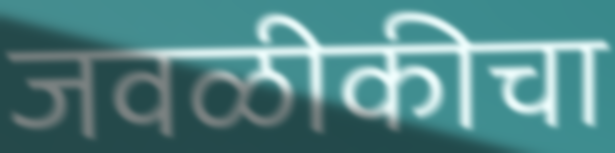
जवळीकीचा